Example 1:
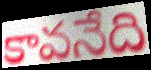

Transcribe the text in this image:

కావనేది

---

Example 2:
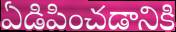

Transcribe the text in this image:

ఏడిపించడానికి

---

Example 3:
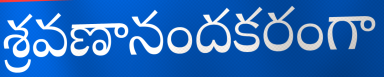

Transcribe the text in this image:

శ్రవణానందకరంగా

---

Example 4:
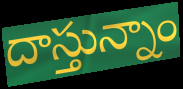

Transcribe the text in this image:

దాస్తున్నాం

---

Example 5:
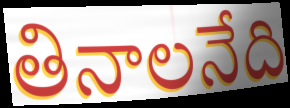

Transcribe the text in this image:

తినాలనేది